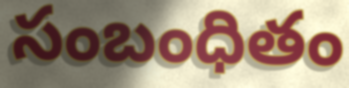
సంబంధితం